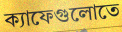
ক্যাফেগুলোতে